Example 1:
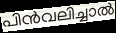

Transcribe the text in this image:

പിൻവലിച്ചാൽ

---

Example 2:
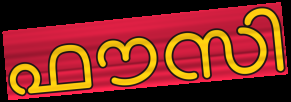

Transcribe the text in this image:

ഫൗസി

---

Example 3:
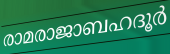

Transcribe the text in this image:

രാമരാജാബഹദൂർ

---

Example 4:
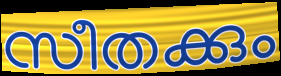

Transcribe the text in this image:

സീതക്കും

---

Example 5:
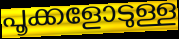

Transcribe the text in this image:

പൂക്കളോടുള്ള